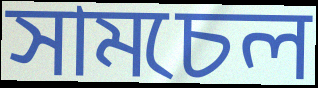
সামচেল